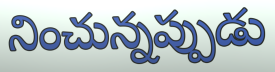
నించున్నప్పుడు